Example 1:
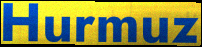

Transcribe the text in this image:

Hurmuz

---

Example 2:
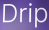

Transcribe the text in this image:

Drip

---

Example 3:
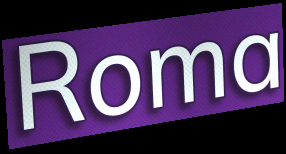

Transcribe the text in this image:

Roma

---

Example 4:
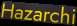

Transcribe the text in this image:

Hazarchi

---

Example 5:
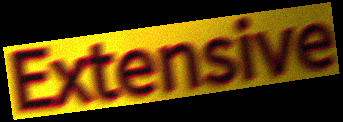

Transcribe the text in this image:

Extensive